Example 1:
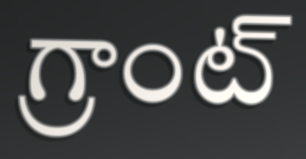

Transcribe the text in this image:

గ్రాంట్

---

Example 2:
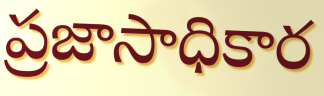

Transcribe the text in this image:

ప్రజాసాధికార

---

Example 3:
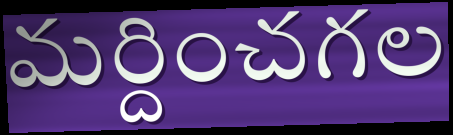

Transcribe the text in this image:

మర్దించగల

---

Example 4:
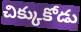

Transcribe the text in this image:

చిక్కుకోడు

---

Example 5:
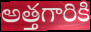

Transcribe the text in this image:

అత్తగారికి